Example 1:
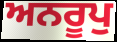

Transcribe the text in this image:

ਅਨਰੂਪੁ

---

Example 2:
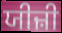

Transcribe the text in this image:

ਯੀਜ਼ੀ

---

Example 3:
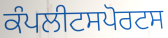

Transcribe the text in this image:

ਕੰਪਲੀਟਸਪੋਰਟਸ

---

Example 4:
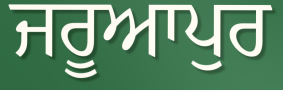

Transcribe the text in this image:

ਜਰੂਆਪੁਰ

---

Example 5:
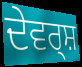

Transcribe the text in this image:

ਦੇਵਰ੍ਸ਼